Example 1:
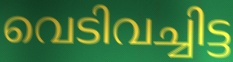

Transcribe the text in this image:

വെടിവച്ചിട്ട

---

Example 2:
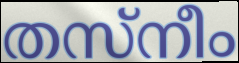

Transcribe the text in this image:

തസ്നീം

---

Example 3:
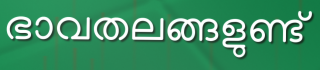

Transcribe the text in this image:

ഭാവതലങ്ങളുണ്ട്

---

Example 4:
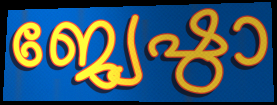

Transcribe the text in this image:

ജ്യേഷ്ഠാ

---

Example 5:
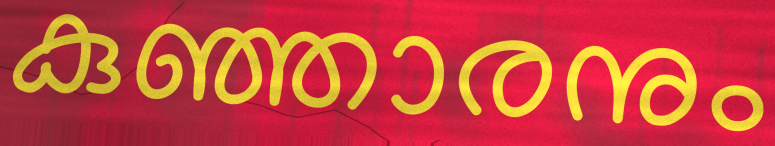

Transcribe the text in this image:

കുഞ്ഞാരനും